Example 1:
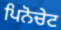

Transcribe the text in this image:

ਪਿਨੋਚੇਟ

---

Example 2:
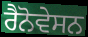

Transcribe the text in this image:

ਰੈਨੋਵੇਸਨ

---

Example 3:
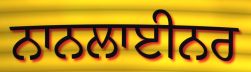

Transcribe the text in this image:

ਨਾਨਲਾਈਨਰ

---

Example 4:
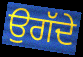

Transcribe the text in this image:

ਉਗੱਦੇ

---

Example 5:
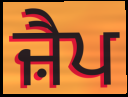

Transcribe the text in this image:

ਜ਼ੈਪ